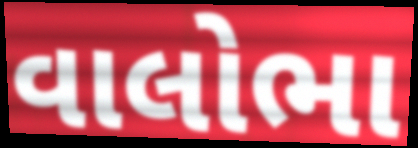
વાલોભા